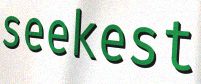
seekest